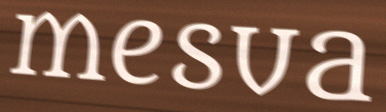
mesua